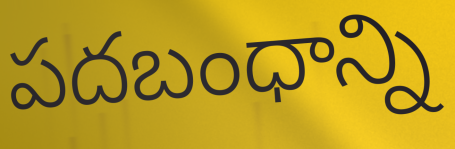
పదబంధాన్ని